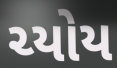
ચ્યોય